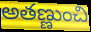
అతణ్ణుంచి